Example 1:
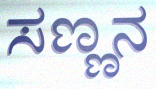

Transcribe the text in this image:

ಸಣ್ಣನ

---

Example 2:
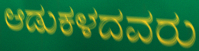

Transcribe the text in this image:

ಆಡುಕಳದವರು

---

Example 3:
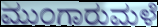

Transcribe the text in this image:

ಮುಂಗಾರುಮಳೆ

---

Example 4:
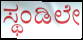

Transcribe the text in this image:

ಸ್ಥಂಡಿಲೇ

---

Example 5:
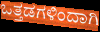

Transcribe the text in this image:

ಒತ್ತಡಗಳಿಂದಾಗಿ